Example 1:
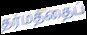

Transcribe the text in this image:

தர்மத்தைப்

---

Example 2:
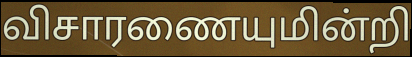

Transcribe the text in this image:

விசாரணையுமின்றி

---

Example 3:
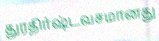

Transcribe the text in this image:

துரதிர்ஷ்டவசமானது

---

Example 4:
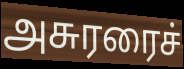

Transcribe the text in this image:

அசுரரைச்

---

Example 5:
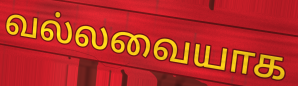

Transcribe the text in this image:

வல்லவையாக